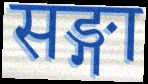
सङ्गा